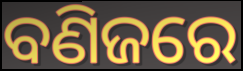
ବଣିଜରେ